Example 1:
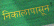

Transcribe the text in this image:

निकालापासून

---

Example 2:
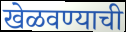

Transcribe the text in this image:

खेळवण्याची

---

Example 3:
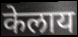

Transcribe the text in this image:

केलाय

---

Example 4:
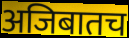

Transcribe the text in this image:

अजिबातच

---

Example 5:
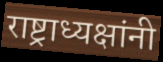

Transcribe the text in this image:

राष्ट्राध्यक्षांनी